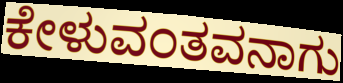
ಕೇಳುವಂತವನಾಗು